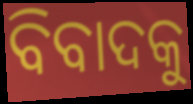
ବିବାଦକୁ